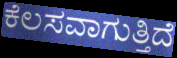
ಕೆಲಸವಾಗುತ್ತಿದೆ